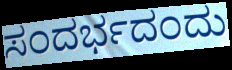
ಸಂದರ್ಭದಂದು